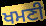
ਖਮਣੀ